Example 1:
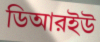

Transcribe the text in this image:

ডিআরইউ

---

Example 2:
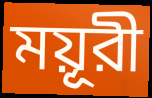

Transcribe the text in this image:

ময়ূরী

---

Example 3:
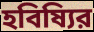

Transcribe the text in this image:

হবিষ্যির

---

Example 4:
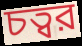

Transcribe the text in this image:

চত্বর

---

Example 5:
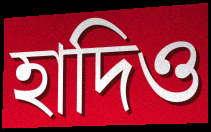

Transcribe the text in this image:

হাদিও